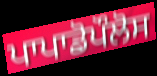
ਪਾਪਾਡੋਪੌਲੋਸ